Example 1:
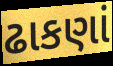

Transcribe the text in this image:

ઢાકણાં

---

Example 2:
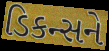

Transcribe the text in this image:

ડિકન્સને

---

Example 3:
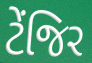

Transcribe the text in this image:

ટેંજિર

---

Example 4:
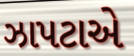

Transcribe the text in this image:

ઝાપટાએ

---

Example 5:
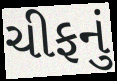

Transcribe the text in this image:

ચીફનું